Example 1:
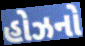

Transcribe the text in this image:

હોઝનો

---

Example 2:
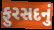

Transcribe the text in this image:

ફુરસદનું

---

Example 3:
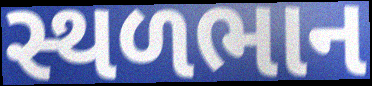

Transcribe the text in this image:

સ્થળભાન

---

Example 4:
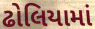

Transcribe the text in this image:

ઢોલિયામાં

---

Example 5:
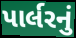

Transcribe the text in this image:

પાર્લરનું